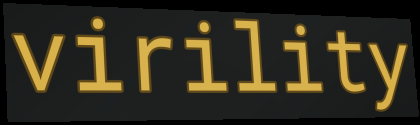
virility